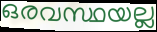
ഒരവസ്ഥയല്ല